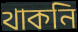
থাকনি